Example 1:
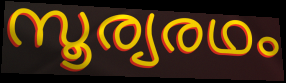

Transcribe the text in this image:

സൂര്യരഥം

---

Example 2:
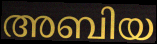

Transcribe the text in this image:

അബിയ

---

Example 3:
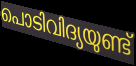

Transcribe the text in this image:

പൊടിവിദ്യയുണ്ട്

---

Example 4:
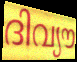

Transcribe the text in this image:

ദിവ്യൗ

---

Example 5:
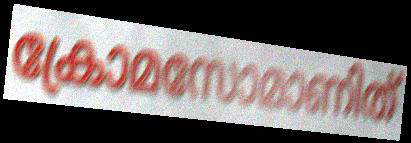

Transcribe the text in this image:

ക്രോമസോമാണിത്